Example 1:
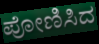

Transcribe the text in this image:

ಪೋಣಿಸಿದ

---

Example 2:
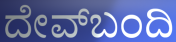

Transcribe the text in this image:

ದೇವ್‌ಬಂದಿ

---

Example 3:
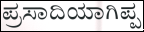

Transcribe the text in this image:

ಪ್ರಸಾದಿಯಾಗಿಪ್ಪ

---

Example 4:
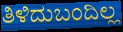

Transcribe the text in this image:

ತಿಳಿದುಬಂದಿಲ್ಲ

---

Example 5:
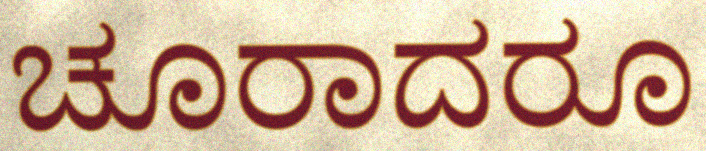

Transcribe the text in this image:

ಚೂರಾದರೂ